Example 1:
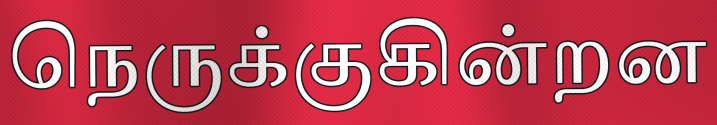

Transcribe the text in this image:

நெருக்குகின்றன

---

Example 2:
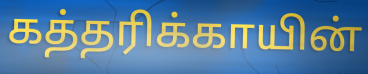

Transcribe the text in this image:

கத்தரிக்காயின்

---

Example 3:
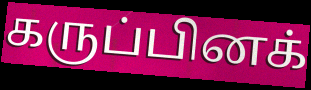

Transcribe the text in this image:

கருப்பினக்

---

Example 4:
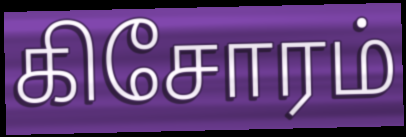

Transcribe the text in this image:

கிசோரம்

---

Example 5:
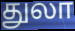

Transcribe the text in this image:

துலா